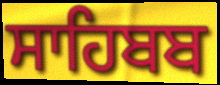
ਸਾਹਿਬਬ